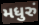
મધુરું